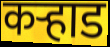
कऱ्हाड